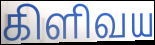
கிளிவய